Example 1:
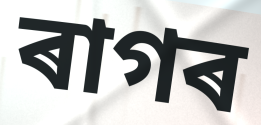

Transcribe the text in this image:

ৰাগৰ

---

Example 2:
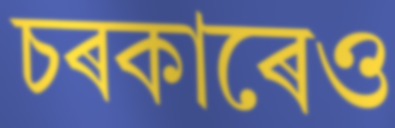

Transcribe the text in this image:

চৰকাৰেও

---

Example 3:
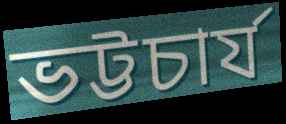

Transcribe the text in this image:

ভট্টচাৰ্য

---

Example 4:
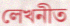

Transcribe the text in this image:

লেখনীত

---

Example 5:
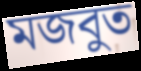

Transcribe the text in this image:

মজবুত